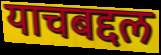
याचबद्दल